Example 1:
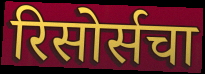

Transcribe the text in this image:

रिसोर्सचा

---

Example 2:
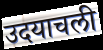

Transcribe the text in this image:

उदयाचली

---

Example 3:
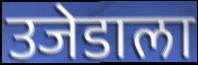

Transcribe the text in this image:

उजेडाला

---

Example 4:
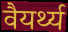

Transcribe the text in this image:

वैयर्थ्य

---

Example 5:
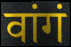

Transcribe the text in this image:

वांगं